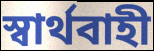
স্বার্থবাহী